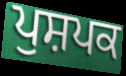
ਪੁਸ਼ਪਕ